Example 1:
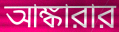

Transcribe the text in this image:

আঙ্কারার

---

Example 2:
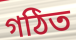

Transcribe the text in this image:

গঠিত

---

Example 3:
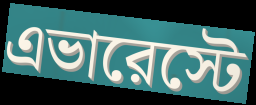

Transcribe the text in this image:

এভারেস্টে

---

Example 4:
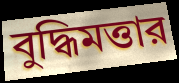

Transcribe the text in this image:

বুদ্ধিমত্তার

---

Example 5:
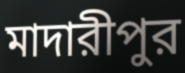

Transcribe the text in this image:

মাদারীপুর